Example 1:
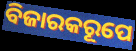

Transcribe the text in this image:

ବିଜାରକରୂପେ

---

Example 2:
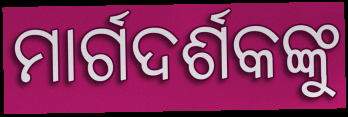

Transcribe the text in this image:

ମାର୍ଗଦର୍ଶକଙ୍କୁ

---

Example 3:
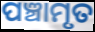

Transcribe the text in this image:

ପଞ୍ଚାମୃତ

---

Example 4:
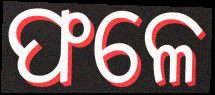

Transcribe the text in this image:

ଫଳେ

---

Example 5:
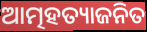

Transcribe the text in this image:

ଆତ୍ମହତ୍ୟାଜନିତ